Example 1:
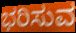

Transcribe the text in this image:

ಭರಿಸುವ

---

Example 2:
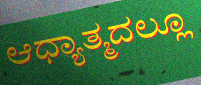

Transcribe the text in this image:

ಆಧ್ಯಾತ್ಮದಲ್ಲೂ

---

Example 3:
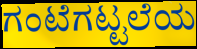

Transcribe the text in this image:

ಗಂಟೆಗಟ್ಟಲೆಯ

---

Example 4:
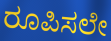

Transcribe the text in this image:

ರೂಪಿಸಲೇ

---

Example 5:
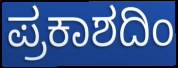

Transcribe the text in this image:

ಪ್ರಕಾಶದಿಂ